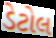
ડેટોલ